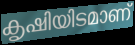
കൃഷിയിടമാണ്